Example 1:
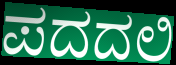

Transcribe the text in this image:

ಪದದಲಿ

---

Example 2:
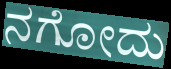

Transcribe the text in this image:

ನಗೋದು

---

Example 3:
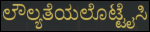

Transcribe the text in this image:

ಲೌಲ್ಯತೆಯಲೊಟ್ಟೈಸಿ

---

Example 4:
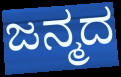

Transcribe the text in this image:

ಜನ್ಮದ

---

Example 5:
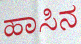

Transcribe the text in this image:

ಹಾಸಿನ